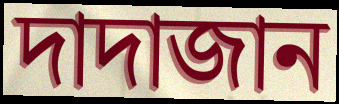
দাদাজান